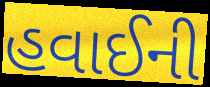
હવાઈની